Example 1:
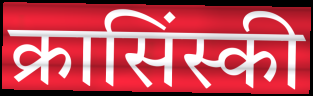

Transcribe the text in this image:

क्रासिंस्की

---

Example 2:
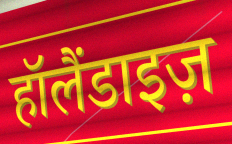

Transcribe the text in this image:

हॉलैंडाइज़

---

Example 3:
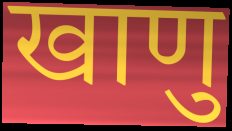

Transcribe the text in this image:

खाणु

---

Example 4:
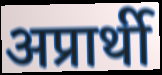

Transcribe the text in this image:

अप्रार्थी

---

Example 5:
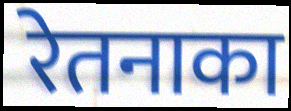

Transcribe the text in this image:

रेतनाका